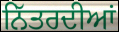
ਨਿੱਤਰਦੀਆਂ